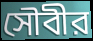
সৌবীর